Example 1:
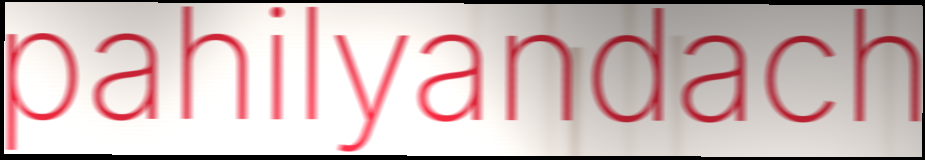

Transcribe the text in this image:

pahilyandach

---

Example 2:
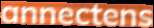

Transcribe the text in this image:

annectens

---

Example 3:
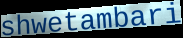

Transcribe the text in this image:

shwetambari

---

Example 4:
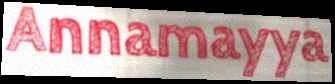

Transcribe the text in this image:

Annamayya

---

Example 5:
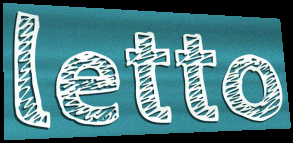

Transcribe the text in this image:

letto